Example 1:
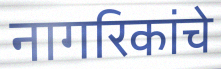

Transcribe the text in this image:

नागरिकांचे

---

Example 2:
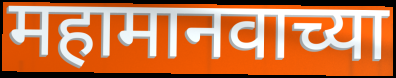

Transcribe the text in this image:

महामानवाच्या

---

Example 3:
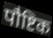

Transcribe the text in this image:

पौष्टिक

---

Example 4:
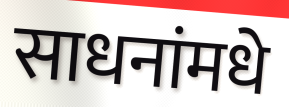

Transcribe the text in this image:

साधनांमधे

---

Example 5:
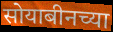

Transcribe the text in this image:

सोयाबीनच्या